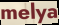
melya